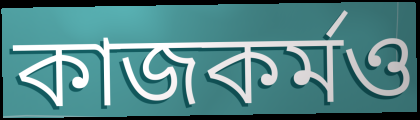
কাজকর্মও